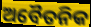
ଅବୈତନିକ